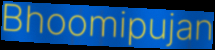
Bhoomipujan